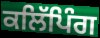
ਕਲਿੱਪਿੰਗ